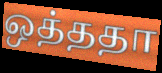
ஒத்ததா